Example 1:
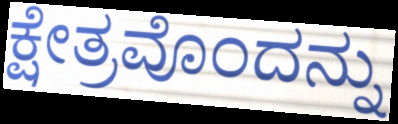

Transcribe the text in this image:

ಕ್ಷೇತ್ರವೊಂದನ್ನು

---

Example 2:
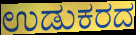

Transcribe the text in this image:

ಉಡುಕರದ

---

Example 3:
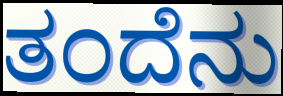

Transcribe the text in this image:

ತಂದೆನು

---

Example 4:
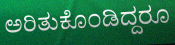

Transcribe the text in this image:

ಅರಿತುಕೊಂಡಿದ್ದರೂ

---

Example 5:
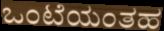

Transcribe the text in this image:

ಒಂಟೆಯಂತಹ